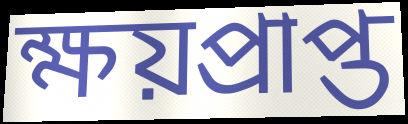
ক্ষয়প্রাপ্ত